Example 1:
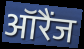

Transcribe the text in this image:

ऑरैंज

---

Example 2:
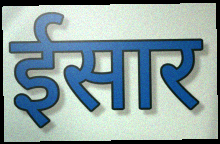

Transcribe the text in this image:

ईसार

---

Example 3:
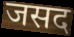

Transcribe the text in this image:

जसद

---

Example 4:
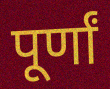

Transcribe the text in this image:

पूर्णां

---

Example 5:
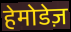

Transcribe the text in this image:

हेमोडेज़